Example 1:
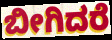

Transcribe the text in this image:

ಬೀಗಿದರೆ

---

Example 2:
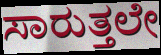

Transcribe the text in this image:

ಸಾರುತ್ತಲೇ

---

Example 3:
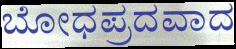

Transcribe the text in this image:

ಬೋಧಪ್ರದವಾದ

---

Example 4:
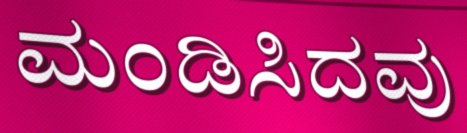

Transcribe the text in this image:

ಮಂಡಿಸಿದವು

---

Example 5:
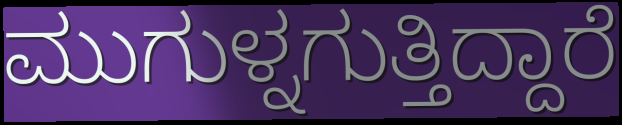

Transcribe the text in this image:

ಮುಗುಳ್ನಗುತ್ತಿದ್ದಾರೆ